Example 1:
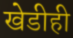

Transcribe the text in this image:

खेडीही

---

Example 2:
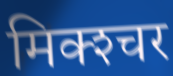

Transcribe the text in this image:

मिक्श्चर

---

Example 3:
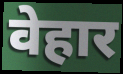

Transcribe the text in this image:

वेहार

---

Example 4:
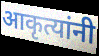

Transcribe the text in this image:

आकृत्यांनी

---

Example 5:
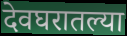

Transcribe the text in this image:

देवघरातल्या